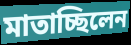
মাতাচ্ছিলেন